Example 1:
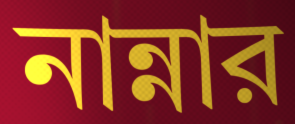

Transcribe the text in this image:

নান্নার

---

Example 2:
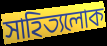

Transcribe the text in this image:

সাহিত্যলোক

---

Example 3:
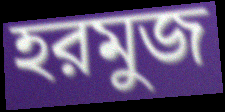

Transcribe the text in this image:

হরমুজ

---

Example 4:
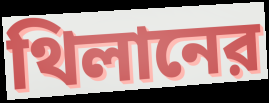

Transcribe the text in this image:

থিলানের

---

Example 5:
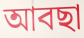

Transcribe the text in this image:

আবছা